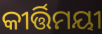
କୀର୍ତ୍ତିମୟୀ